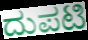
ದುಪಟಿ